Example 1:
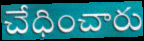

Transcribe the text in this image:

చేధించారు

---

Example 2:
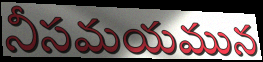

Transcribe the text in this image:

నీసమయమున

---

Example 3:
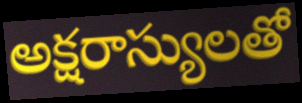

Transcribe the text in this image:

అక్షరాస్యులతో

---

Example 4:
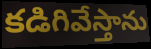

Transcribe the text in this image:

కడిగివేస్తాను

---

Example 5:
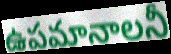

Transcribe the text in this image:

ఉపమానాలనీ